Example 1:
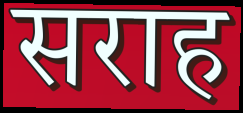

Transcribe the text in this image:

सराह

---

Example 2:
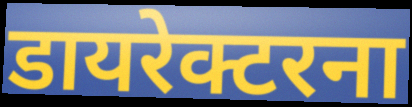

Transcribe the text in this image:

डायरेक्टरना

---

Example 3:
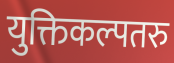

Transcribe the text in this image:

युक्तिकल्पतरु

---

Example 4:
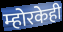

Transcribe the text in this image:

म्होरकेही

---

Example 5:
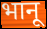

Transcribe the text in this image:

भानू